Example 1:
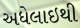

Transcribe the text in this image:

અધેલાઇથી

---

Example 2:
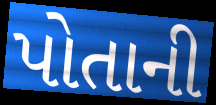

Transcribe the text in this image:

પોતાની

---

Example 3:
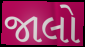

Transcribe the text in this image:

જાલો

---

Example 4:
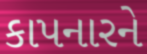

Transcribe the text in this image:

કાપનારને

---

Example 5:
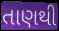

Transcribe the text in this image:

તાણથી